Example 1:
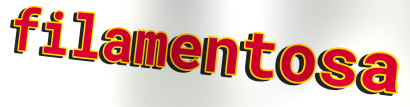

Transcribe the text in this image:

filamentosa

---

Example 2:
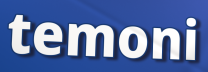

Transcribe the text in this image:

temoni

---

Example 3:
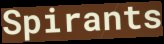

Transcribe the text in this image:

Spirants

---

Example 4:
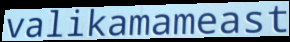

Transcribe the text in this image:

valikamameast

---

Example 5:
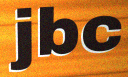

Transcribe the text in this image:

jbc